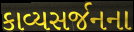
કાવ્યસર્જનના